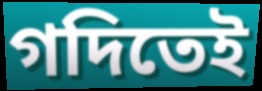
গদিতেই